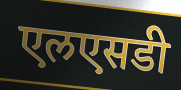
एलएसडी